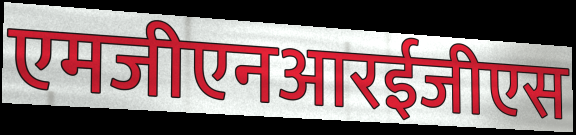
एमजीएनआरईजीएस